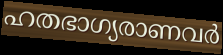
ഹതഭാഗ്യരാണവർ